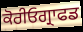
ਕੋਰੀਓਗ੍ਰਾਫਡ